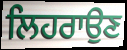
ਲਿਹਰਾਉਣ